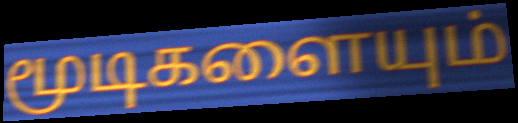
மூடிகளையும்